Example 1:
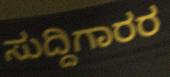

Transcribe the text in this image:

ಸುದ್ದಿಗಾರರ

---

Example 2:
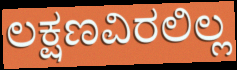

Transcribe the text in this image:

ಲಕ್ಷಣವಿರಲಿಲ್ಲ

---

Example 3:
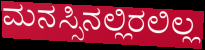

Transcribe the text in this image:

ಮನಸ್ಸಿನಲ್ಲಿರಲಿಲ್ಲ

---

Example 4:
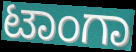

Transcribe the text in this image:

ಟಾಂಗಾ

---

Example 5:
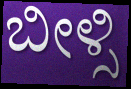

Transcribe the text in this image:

ಬೀಳ್ಸಿ